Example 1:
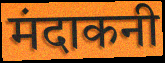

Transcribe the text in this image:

मंदाकनी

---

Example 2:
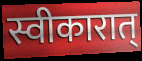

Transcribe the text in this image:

स्वीकारात्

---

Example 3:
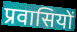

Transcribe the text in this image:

प्रवासियों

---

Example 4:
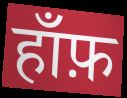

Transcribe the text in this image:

हाँफ़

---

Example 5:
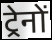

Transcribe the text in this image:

ट्रेनों